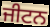
ਜੀਟਨ